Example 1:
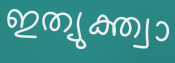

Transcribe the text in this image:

ഇത്യുക്ത്വാ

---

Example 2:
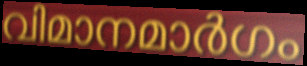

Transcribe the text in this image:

വിമാനമാർഗം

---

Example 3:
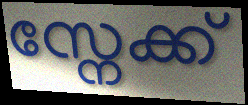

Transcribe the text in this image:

സ്നേക്ക്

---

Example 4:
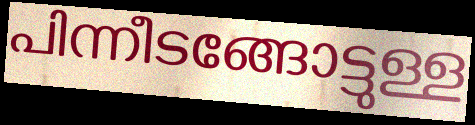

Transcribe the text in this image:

പിന്നീടങ്ങോട്ടുള്ള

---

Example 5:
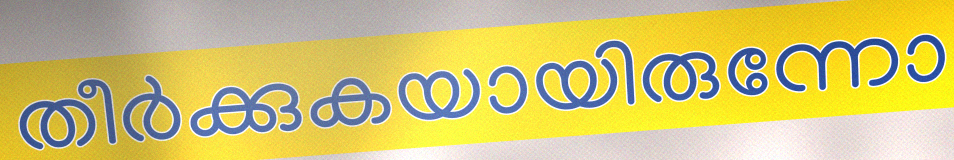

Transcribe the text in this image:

തീർക്കുകയായിരുന്നോ